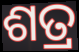
ଶତ୍ର